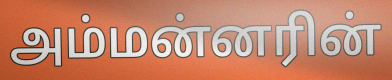
அம்மன்னரின்